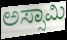
ಅಸ್ಸಾಮಿ